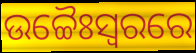
ଉଚ୍ଚୈଃସ୍ୱରରେ